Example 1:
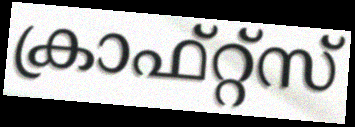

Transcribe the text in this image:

ക്രാഫ്റ്റ്സ്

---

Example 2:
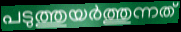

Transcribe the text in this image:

പടുത്തുയർത്തുന്നത്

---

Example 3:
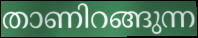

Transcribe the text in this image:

താണിറങ്ങുന്ന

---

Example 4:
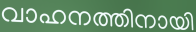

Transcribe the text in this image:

വാഹനത്തിനായി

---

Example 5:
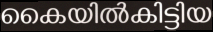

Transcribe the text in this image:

കൈയിൽകിട്ടിയ